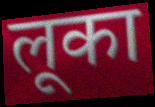
लूका